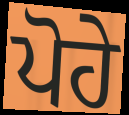
ਪੋਹੇ